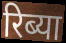
रिब्या